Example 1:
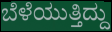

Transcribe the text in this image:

ಬೆಳೆಯುತ್ತಿದ್ದು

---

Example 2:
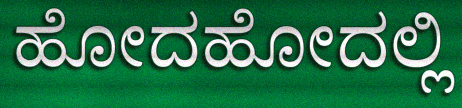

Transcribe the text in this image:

ಹೋದಹೋದಲ್ಲಿ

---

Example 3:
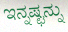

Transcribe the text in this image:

ಇನ್ನಷ್ಟನ್ನು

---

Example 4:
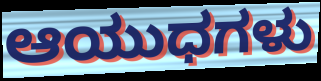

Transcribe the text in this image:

ಆಯುಧಗಳು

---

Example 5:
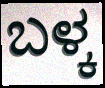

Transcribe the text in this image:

ಬಳ್ಕ